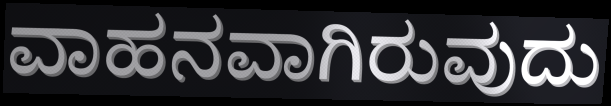
ವಾಹನವಾಗಿರುವುದು